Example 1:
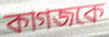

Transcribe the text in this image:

কাগজকে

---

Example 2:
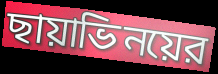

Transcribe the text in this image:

ছায়াভিনয়ের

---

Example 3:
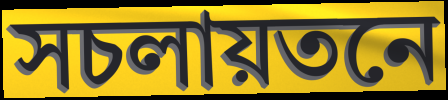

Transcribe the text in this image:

সচলায়তনে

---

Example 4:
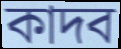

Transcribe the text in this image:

কাদব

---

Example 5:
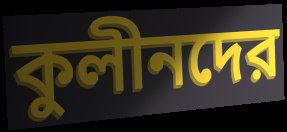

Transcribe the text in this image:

কুলীনদের